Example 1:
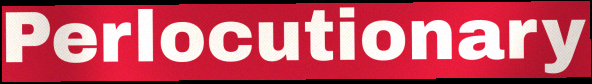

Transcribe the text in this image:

Perlocutionary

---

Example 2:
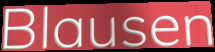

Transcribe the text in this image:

Blausen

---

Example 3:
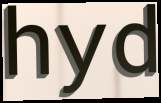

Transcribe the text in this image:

hyd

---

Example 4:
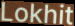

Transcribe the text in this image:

Lokhit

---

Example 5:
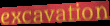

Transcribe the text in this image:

excavation